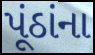
પૂંઠાંના